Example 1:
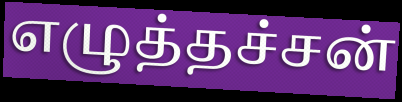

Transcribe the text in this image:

எழுத்தச்சன்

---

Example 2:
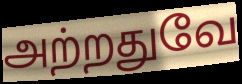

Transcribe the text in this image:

அற்றதுவே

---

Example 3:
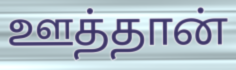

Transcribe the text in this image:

ஊத்தான்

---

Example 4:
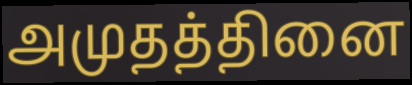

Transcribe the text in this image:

அமுதத்தினை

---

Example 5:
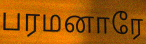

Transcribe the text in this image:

பரமனாரே